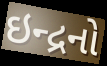
ઇન્દ્રનો